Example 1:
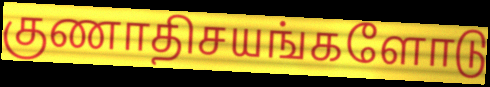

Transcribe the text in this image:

குணாதிசயங்களோடு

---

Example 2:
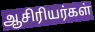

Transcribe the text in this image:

ஆசிரியர்கள்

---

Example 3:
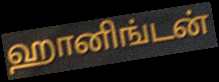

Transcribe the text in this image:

ஹானிங்டன்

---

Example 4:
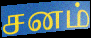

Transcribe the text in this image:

சனம்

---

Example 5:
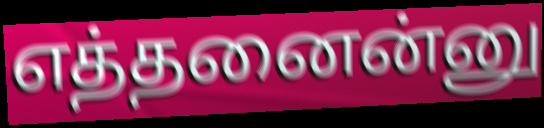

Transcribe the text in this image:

எத்தனைன்னு